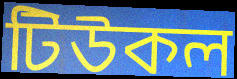
টিউকল